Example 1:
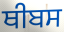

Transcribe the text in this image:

ਥੀਬਸ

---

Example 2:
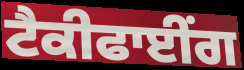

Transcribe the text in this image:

ਟੈਕੀਫਾਈਂਗ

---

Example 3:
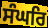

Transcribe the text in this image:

ਸੰਘਰਿ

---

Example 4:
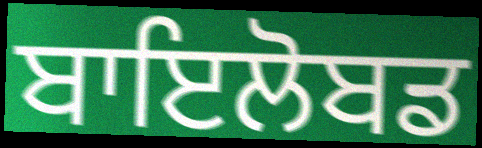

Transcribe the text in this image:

ਬਾਇਲੋਬਡ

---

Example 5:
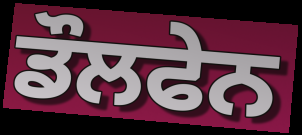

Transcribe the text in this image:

ਡੌਲਫੇਨ